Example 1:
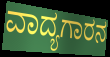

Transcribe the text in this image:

ವಾದ್ಯಗಾರನ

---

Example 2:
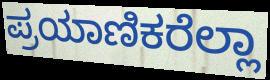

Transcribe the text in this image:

ಪ್ರಯಾಣಿಕರೆಲ್ಲಾ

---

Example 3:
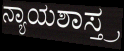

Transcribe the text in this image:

ನ್ಯಾಯಶಾಸ್ತ್ರ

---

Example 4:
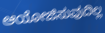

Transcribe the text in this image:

ಆಯೋಜಿಸುವುದಿಲ್ಲ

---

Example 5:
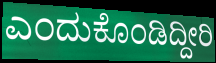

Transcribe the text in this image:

ಎಂದುಕೊಂಡಿದ್ದೀರಿ